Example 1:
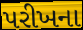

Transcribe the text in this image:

પરીખના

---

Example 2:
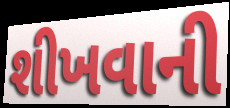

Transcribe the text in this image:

શીખવાની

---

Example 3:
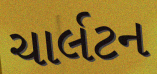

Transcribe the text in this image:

ચાર્લટન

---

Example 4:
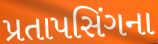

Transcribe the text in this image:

પ્રતાપસિંગના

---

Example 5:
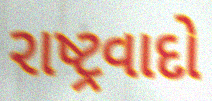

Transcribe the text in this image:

રાષ્ટ્રવાદો